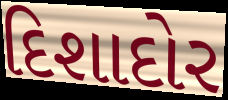
દિશાદોર